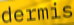
dermis